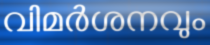
വിമർശനവും